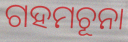
ଗହମଚୂନା